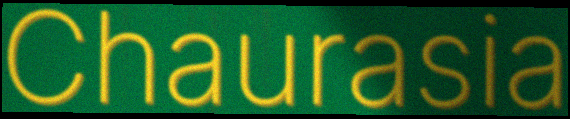
Chaurasia